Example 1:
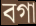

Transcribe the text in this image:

বগা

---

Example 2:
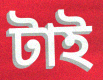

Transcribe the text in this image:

টাই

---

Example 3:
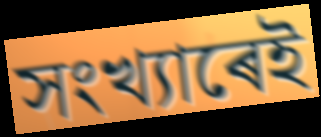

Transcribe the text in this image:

সংখ্যাৰেই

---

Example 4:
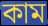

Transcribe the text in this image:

কাম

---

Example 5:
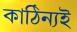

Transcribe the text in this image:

কাঠিন্যই